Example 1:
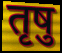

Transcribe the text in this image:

तृषु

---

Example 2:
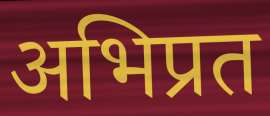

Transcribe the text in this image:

अभिप्रत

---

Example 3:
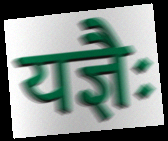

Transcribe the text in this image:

यज्ञैः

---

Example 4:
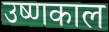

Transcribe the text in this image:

उष्णकाल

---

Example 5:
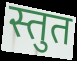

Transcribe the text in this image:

स्तुत